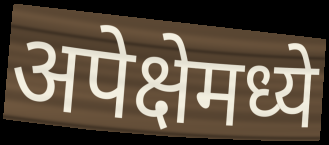
अपेक्षेमध्ये